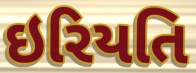
ઇરિયતિ